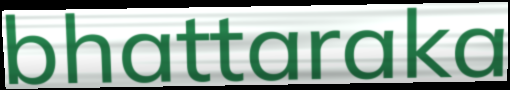
bhattaraka